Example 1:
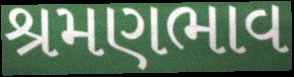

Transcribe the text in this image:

શ્રમણભાવ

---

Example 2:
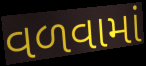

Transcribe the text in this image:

વળવામાં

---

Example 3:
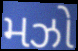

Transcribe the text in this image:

મઝો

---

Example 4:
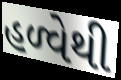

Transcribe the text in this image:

હળ્વેથી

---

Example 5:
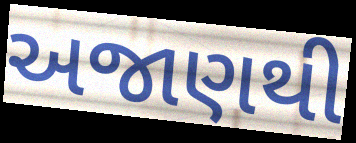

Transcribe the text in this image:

અજાણથી